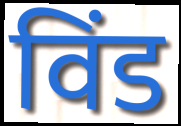
विंड